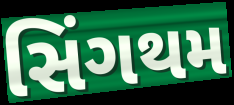
સિંગથમ